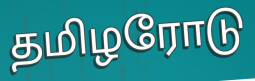
தமிழரோடு